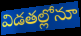
విడతల్లోనూ